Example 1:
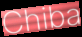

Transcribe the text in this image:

Chiba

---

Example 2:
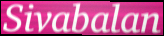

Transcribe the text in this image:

Sivabalan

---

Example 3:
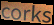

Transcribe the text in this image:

corks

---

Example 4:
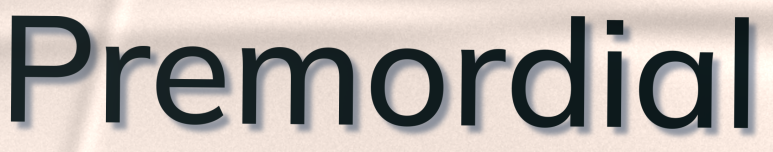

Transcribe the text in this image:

Premordial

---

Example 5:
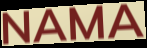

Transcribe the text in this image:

NAMA